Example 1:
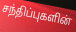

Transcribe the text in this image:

சந்திப்புகளின்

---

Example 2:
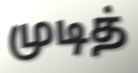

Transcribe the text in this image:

முடித்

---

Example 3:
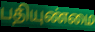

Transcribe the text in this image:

பதியுண்மை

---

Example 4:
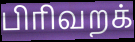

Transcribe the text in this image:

பிரிவறக்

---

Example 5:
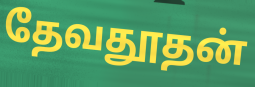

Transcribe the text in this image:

தேவதூதன்